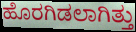
ಹೊರಗಿಡಲಾಗಿತ್ತು